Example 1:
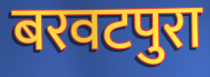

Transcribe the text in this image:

बरवटपुरा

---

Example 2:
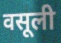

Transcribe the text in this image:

वसूली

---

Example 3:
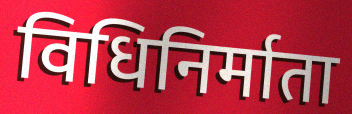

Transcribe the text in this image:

विधिनिर्माता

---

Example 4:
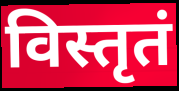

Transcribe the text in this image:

विस्तृतं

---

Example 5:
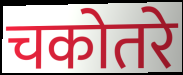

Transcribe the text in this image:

चकोतरे